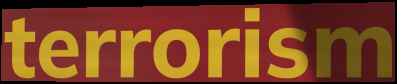
terrorism